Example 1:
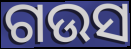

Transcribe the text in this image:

ଗଉସ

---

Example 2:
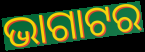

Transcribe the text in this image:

ଭାଗାଟର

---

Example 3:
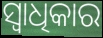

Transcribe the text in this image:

ସ୍ବାଧିକାର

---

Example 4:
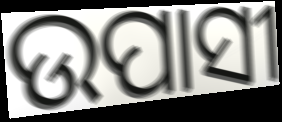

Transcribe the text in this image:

ଉପାସୀ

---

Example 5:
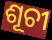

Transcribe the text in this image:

ଶୂଚୀ